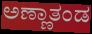
ಅಣ್ಣಾತಂಡ